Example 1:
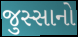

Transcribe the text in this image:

જુસ્સાનો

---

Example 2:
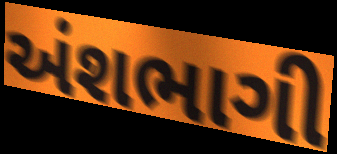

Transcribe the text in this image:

અંશભાગી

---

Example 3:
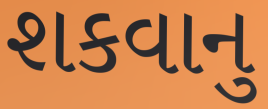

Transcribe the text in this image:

શકવાનુ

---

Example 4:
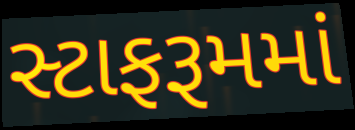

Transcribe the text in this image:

સ્ટાફરૂમમાં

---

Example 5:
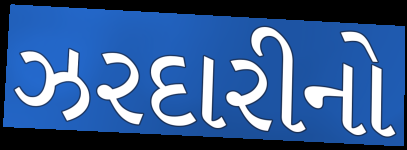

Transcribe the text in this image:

ઝરદારીનો